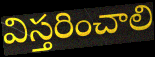
విస్తరించాలి